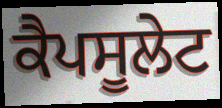
ਕੈਪਸੂਲੇਟ